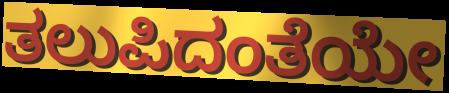
ತಲುಪಿದಂತೆಯೇ